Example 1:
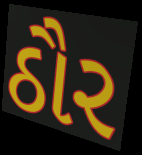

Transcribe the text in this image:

ઠૌર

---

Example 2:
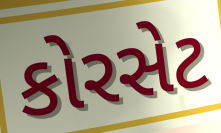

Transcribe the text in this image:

કોરસેટ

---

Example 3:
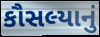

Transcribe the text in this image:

કૌસલ્યાનું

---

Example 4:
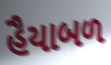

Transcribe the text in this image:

હૈયાબળ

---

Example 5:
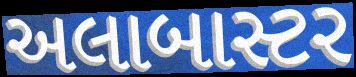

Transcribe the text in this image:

અલાબાસ્ટર